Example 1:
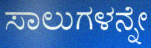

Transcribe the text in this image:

ಸಾಲುಗಳನ್ನೇ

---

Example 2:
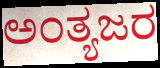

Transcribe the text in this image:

ಅಂತ್ಯಜರ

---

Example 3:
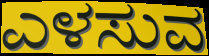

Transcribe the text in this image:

ಎಳಸುವ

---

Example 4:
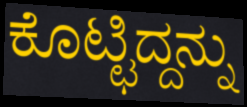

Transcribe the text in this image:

ಕೊಟ್ಟಿದ್ದನ್ನು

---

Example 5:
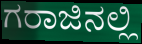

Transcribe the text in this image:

ಗರಾಜಿನಲ್ಲಿ